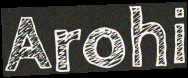
Arohi